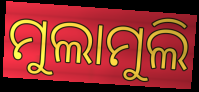
ମୁଲାମୁଲି